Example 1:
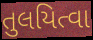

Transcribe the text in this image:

તુલયિત્વા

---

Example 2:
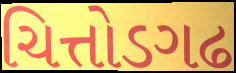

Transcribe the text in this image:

ચિત્તોડગઢ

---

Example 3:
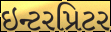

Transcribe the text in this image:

ઇન્ટરપ્રિટર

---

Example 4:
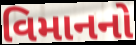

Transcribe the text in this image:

વિમાનનો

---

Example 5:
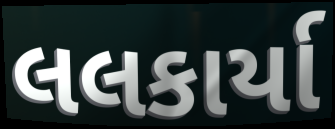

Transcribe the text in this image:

લલકાર્યા